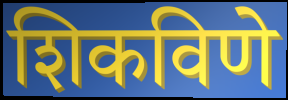
शिकविणे